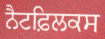
ਨੈਟਫ਼ਿਲਕਸ